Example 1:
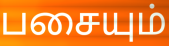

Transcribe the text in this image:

பசையும்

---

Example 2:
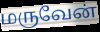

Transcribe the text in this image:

மருவேன்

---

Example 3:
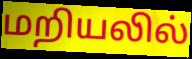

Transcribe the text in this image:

மறியலில்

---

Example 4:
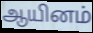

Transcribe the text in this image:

ஆயினம்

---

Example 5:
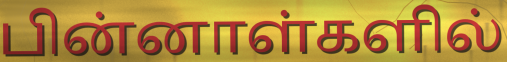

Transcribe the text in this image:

பின்னாள்களில்